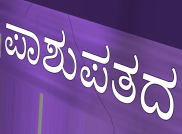
ಪಾಶುಪತದ